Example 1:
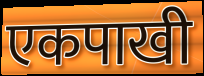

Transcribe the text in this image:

एकपाखी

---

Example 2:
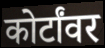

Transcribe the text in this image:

कोर्टांवर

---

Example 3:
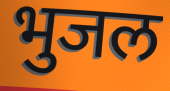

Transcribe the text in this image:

भुजल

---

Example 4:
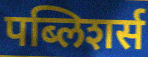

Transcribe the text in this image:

पब्लिशर्स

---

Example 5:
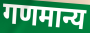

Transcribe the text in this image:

गणमान्य